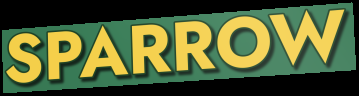
SPARROW